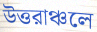
উত্তরাঞ্চলে